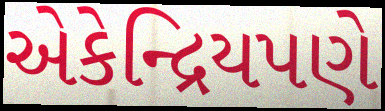
એકેન્દ્રિયપણે